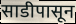
साडीपासून